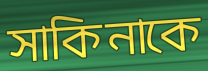
সাকিনাকে